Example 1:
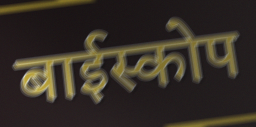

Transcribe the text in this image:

बाईस्कोप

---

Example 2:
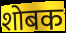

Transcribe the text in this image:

शोबक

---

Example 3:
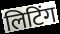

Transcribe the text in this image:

लिटिंग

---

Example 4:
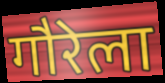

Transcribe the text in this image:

गौरेला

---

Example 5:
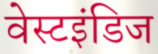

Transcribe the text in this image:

वेस्टइंडिज